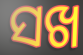
ସଖ